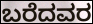
ಬರೆದವರ